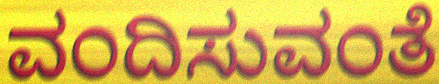
ವಂದಿಸುವಂತೆ